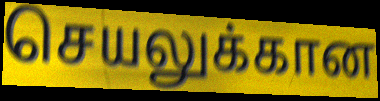
செயலுக்கான